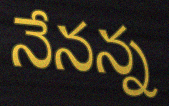
నేనన్న